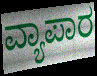
ವ್ಯಾಪಾರ